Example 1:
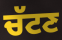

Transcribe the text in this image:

ਚੱਟਣ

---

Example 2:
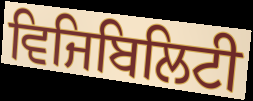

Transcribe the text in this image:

ਵਿਜਿਬਿਲਿਟੀ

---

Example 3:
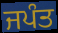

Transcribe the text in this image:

ਜਪੰਤ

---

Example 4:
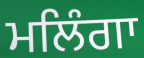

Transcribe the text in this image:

ਮਲਿੰਗਾ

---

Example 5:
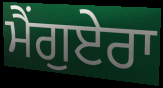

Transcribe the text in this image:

ਮੈਂਗੁਏਰਾ